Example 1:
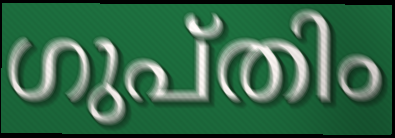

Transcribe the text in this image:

ഗുപ്തിം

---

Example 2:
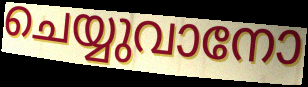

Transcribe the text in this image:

ചെയ്യുവാനോ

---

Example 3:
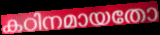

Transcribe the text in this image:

കഠിനമായതോ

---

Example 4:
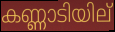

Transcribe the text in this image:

കണ്ണാടിയില്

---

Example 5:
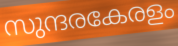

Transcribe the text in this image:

സുന്ദരകേരളം